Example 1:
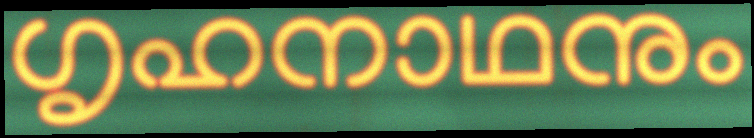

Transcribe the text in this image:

ഗൃഹനാഥനും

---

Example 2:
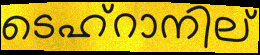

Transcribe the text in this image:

ടെഹ്റാനില്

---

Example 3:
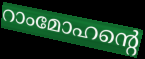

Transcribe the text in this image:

റാംമോഹന്റെ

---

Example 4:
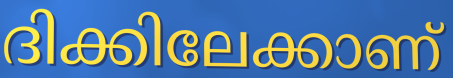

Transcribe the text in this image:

ദിക്കിലേക്കാണ്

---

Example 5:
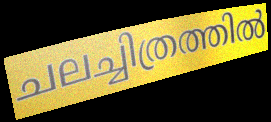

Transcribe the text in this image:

ചലച്ചിത്രത്തിൽ